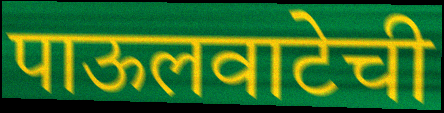
पाऊलवाटेची